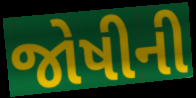
જોષીની